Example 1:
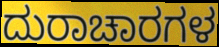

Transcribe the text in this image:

ದುರಾಚಾರಗಳ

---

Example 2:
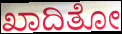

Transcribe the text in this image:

ಖಾದಿತೋ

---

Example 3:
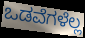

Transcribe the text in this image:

ಒಡವೆಗಳೆಲ್ಲ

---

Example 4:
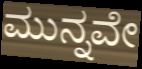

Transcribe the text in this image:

ಮುನ್ನವೇ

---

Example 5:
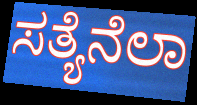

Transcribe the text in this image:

ಸತ್ಯೆನೆಲಾ